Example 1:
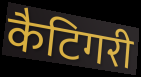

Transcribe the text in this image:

कैटिगरी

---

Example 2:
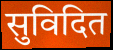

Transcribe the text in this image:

सुविदित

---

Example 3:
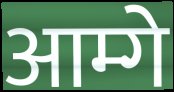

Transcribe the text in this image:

आम्गे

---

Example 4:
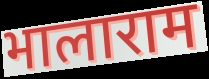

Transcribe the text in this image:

भालाराम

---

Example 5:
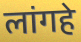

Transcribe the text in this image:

लांगहे